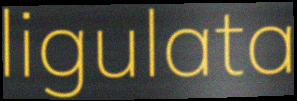
ligulata